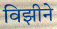
विझीने